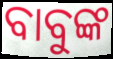
ବାବୁଙ୍କ